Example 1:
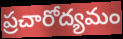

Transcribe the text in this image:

ప్రచారోద్యమం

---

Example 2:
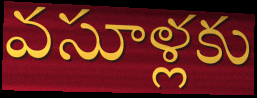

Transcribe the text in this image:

వసూళ్లకు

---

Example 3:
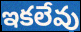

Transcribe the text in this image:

ఇకలేవు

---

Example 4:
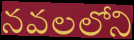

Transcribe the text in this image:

నవలలోని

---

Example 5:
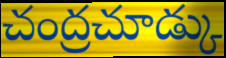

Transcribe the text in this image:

చంద్రచూడ్కు